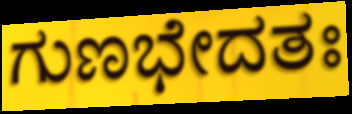
ಗುಣಭೇದತಃ